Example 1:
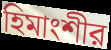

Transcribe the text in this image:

হিমাংশীর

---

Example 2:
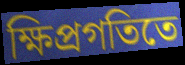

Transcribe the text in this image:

ক্ষিপ্রগতিতে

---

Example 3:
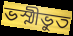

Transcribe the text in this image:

ভস্মীভুত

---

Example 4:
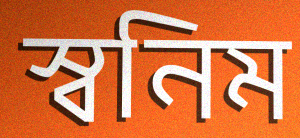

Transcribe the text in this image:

স্বনিম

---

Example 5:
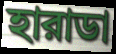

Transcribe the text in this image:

হারাডা